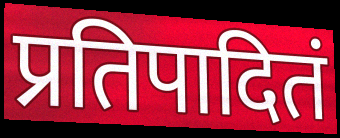
प्रतिपादितं